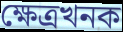
ক্ষেত্ৰখনক